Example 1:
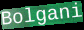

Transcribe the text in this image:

Bolgani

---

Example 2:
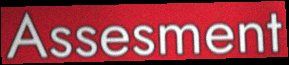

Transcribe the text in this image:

Assesment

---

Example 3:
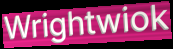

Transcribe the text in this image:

Wrightwiok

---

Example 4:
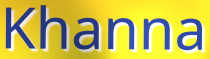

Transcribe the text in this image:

Khanna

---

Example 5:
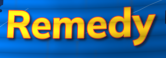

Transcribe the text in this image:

Remedy